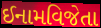
ઈનામવિજેતા